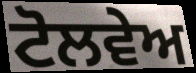
ਟੋਲਵੇਅ